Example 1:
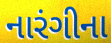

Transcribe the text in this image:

નારંગીના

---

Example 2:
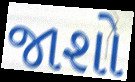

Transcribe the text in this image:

જાશો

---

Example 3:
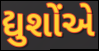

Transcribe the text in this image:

દ્યુશોંએ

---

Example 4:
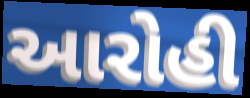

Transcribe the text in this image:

આરોહી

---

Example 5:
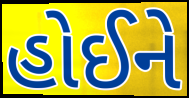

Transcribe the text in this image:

હોઈને